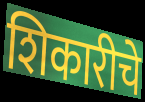
शिकारीचे